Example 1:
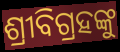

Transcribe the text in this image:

ଶ୍ରୀବିଗ୍ରହଙ୍କୁ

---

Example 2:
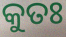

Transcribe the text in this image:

କୁତଃ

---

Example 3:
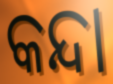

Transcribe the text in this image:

କନ୍ଦା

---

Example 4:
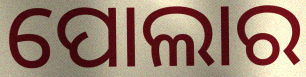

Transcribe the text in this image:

ପୋଲାର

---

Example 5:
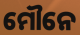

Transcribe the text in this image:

ମୌନେ